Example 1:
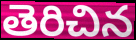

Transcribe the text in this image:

తెరిచిన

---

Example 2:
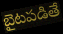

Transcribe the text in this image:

బైటపడితే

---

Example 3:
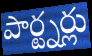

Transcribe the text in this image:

పార్ట్నర్లు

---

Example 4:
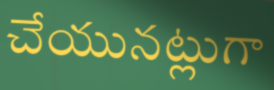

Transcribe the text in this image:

చేయునట్లుగా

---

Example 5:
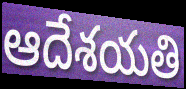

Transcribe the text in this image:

ఆదేశయతి